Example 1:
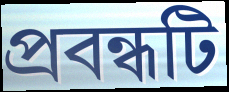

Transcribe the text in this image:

প্ৰবন্ধটি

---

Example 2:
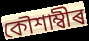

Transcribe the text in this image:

কৌশাম্বীৰ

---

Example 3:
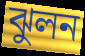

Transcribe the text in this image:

ঝুলন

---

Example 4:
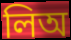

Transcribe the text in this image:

লিঅ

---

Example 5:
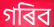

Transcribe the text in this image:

গৰিব